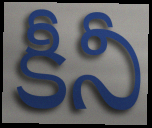
కీనీ